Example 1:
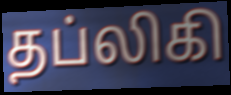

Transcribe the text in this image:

தப்லிகி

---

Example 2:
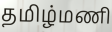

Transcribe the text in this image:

தமிழ்மணி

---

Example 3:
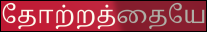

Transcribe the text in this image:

தோற்றத்தையே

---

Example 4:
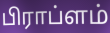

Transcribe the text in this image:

பிராப்ளம்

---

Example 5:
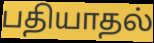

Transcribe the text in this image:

பதியாதல்